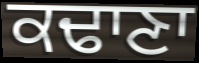
ਕਢਾਣਾ